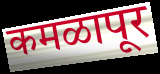
कमळापूर